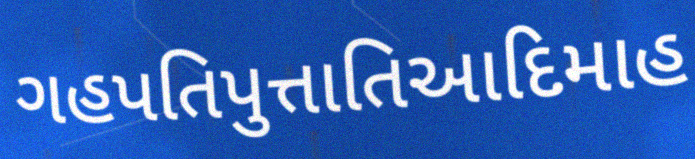
ગહપતિપુત્તાતિઆદિમાહ